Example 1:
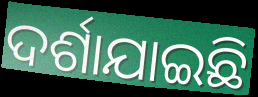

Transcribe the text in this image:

ଦର୍ଶାଯାଇଛି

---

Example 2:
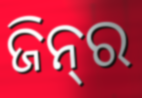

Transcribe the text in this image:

ଜିନ୍‍ର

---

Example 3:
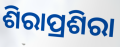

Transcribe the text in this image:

ଶିରାପ୍ରଶିରା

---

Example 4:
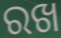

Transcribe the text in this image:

ରଖ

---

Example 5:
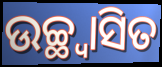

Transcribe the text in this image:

ଉଚ୍ଛ୍ୱାସିତ